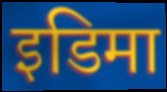
इडिमा